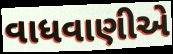
વાધવાણીએ